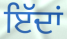
ਇੱਦਾਂ